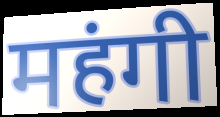
महंगी